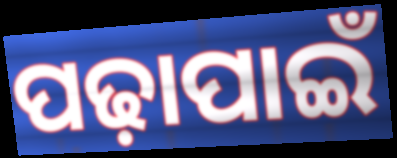
ପଢ଼ାପାଇଁ